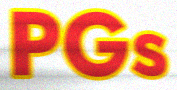
PGs